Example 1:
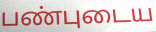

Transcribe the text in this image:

பண்புடைய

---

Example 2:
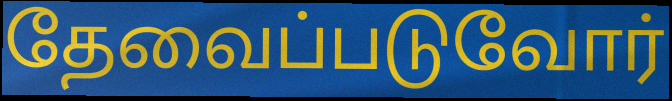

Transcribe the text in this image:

தேவைப்படுவோர்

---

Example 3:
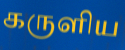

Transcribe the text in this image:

கருளிய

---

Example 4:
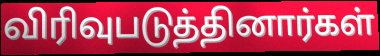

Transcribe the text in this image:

விரிவுபடுத்தினார்கள்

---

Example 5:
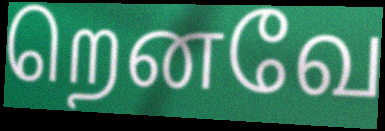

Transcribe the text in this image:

றெனவே